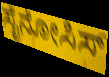
ಸೈನೋಸಿಸ್